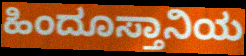
ಹಿಂದೂಸ್ತಾನಿಯ